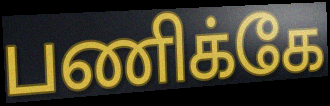
பணிக்கே